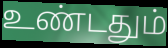
உண்டதும்